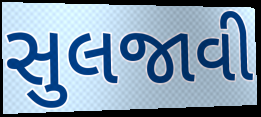
સુલજાવી